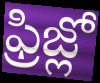
ఫ్రిజ్లో